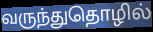
வருந்துதொழில்